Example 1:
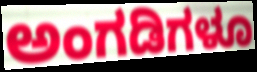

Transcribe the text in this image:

ಅಂಗಡಿಗಳೂ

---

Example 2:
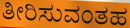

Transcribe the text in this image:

ತೀರಿಸುವಂತಹ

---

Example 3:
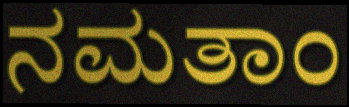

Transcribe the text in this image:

ನಮತಾಂ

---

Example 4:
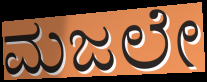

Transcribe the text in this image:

ಮಜಲೇ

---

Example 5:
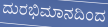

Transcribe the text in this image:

ದುರಭಿಮಾನದಿಂದ